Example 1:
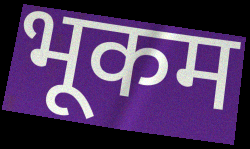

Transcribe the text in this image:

भूकम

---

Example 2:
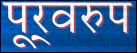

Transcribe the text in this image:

पूर्वरुप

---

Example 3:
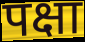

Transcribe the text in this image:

पक्षा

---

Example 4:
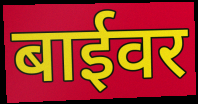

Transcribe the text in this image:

बाईवर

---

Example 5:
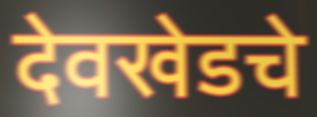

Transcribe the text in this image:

देवखेडचे